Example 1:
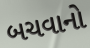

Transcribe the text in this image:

બચવાનો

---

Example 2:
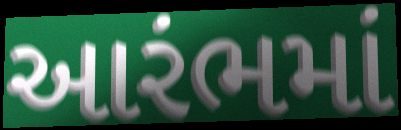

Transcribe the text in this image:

આરંભમાં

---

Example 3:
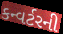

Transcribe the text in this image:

કન્વર્ટરની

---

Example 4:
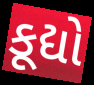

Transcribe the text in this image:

કૂદ્યો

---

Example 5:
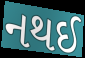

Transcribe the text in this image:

નથઈ